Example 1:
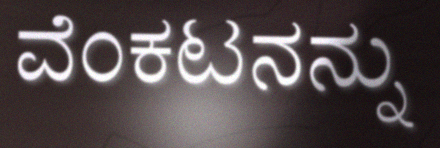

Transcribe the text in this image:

ವೆಂಕಟನನ್ನು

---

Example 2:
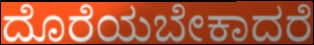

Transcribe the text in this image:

ದೊರೆಯಬೇಕಾದರೆ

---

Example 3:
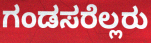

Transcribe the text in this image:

ಗಂಡಸರೆಲ್ಲರು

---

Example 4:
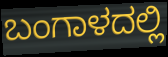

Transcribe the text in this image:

ಬಂಗಾಳದಲ್ಲಿ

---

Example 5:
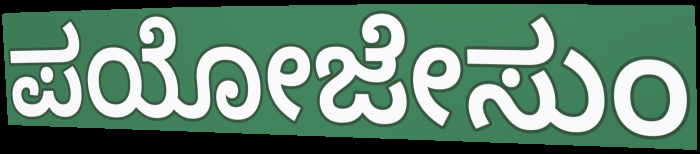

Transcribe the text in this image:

ಪಯೋಜೇಸುಂ